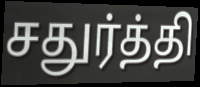
சதுர்த்தி